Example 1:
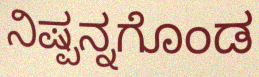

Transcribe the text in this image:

ನಿಷ್ಪನ್ನಗೊಂಡ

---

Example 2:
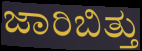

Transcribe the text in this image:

ಜಾರಿಬಿತ್ತು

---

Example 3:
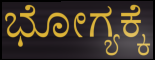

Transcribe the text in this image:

ಭೋಗ್ಯಕ್ಕೆ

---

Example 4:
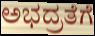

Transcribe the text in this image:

ಅಭದ್ರತೆಗೆ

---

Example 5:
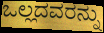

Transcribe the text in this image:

ಒಲ್ಲದವರನ್ನು